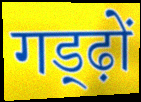
गड्‌ढ़ों